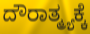
ದೌರಾತ್ಮ್ಯಕ್ಕೆ